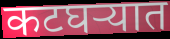
कटघऱ्यात